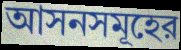
আসনসমূহের